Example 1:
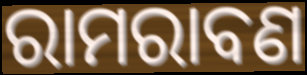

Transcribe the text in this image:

ରାମରାବଣ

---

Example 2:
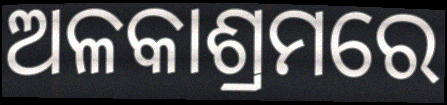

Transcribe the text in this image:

ଅଳକାଶ୍ରମରେ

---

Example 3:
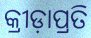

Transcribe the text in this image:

କ୍ରୀଡ଼ାପ୍ରତି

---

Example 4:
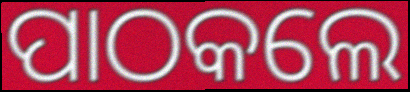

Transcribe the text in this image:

ପାଠକଲେ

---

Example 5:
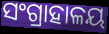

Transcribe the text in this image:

ସଂଗ୍ରାହାଳୟ